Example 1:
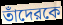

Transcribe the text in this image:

তাঁদেরকে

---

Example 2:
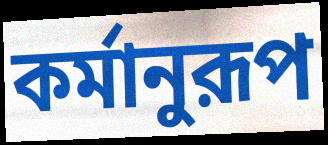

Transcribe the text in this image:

কর্মানুরূপ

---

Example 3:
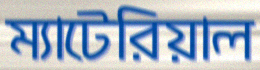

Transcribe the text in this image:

ম্যাটেরিয়াল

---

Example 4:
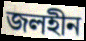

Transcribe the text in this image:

জলহীন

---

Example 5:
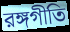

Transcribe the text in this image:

রঙ্গগীতি